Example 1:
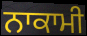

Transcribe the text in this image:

ਨਾਕਾਮੀ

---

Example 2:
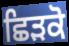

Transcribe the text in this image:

ਛਿੜਕੋ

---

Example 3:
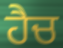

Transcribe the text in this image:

ਹੈਚ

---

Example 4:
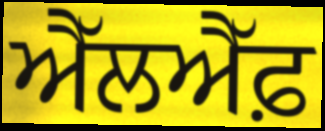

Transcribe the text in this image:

ਐੱਲਐੱਫ਼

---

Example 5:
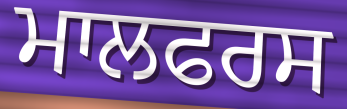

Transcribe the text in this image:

ਮਾਲਫਰਸ